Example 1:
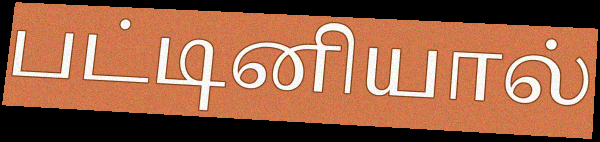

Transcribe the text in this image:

பட்டினியால்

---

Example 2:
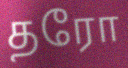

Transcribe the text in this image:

தரோ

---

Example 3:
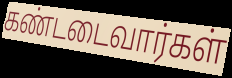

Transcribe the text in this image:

கண்டடைவார்கள்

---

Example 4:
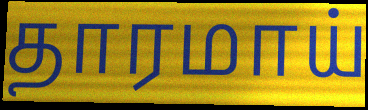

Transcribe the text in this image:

தாரமாய்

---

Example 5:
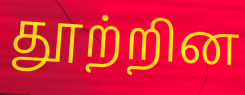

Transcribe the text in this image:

தூற்றின